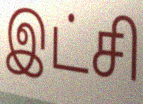
இட்சி